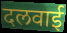
दलवाई